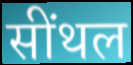
सींथल